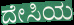
ದೇಸಿಯ